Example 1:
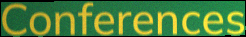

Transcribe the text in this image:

Conferences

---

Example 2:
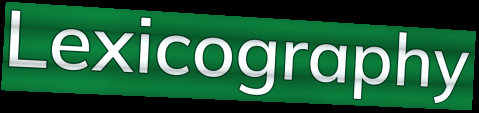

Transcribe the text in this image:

Lexicography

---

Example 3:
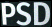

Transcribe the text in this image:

PSD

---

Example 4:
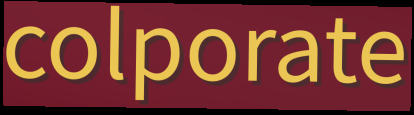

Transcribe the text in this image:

colporate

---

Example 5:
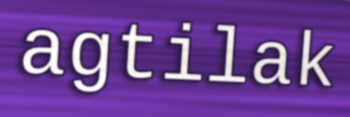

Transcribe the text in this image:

agtilak